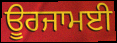
ਊਰਜਾਮਈ